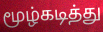
மூழ்கடித்து